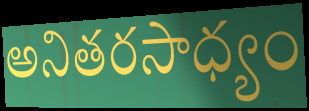
అనితరసాధ్యం